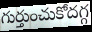
గుర్తుంచుకోదగ్గ